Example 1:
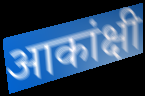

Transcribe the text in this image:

आकांक्षी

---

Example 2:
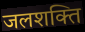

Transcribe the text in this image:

जलशक्ति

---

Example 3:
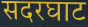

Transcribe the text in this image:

सदरघाट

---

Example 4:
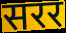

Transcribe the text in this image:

सरर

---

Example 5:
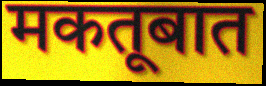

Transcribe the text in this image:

मकतूबात